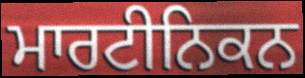
ਮਾਰਟੀਨਿਕਨ